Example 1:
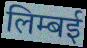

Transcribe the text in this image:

लिम्बई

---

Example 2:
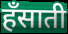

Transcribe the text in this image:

हँसाती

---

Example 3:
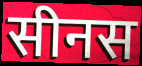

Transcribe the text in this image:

सीनस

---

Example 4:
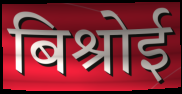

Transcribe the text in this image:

बिश्रोई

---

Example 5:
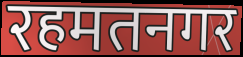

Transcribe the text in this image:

रहमतनगर